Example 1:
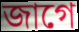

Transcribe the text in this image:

জাগে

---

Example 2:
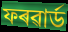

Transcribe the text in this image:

ফৰৱাৰ্ড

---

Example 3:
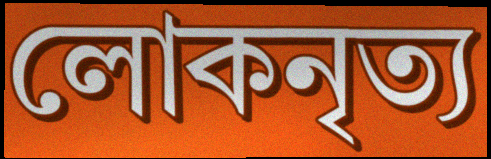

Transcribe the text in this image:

লোকনৃত্য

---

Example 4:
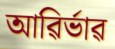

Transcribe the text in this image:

আৱিৰ্ভাৱ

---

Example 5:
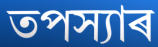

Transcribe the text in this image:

তপস্যাৰ